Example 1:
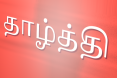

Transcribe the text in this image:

தாழ்த்தி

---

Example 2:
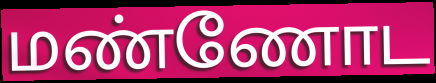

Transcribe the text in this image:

மண்ணோட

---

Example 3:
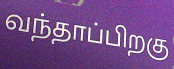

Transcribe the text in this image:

வந்தாப்பிறகு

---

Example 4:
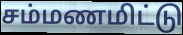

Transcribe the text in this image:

சம்மணமிட்டு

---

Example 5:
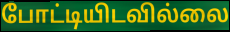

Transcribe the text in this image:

போட்டியிடவில்லை